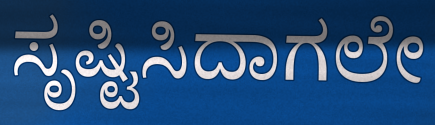
ಸೃಷ್ಟಿಸಿದಾಗಲೇ